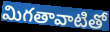
మిగతావాటితో